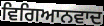
ਵਿਗਿਆਨਵਾਦ